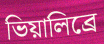
ভিয়ালিব্রে